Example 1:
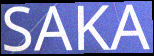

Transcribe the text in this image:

SAKA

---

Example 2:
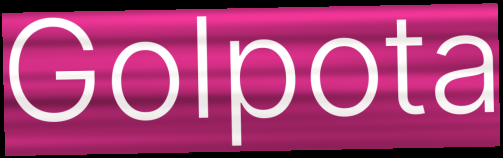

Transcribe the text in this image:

Golpota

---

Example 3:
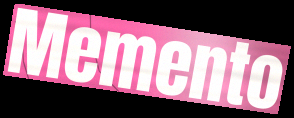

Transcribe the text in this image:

Memento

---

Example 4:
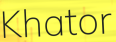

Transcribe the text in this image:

Khator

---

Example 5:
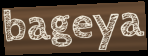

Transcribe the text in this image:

bageya